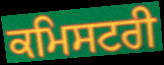
ਕਮਿਸਟਰੀ